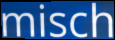
misch